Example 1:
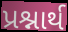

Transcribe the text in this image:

પ્રશ્નાર્થ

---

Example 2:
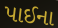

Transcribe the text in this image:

પાઈના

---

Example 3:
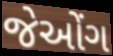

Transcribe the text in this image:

જેઓંગ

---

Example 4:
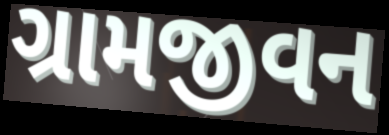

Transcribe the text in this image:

ગ્રામજીવન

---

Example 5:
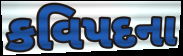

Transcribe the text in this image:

કવિપદના